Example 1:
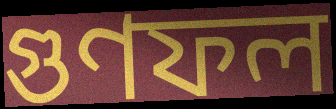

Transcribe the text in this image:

গুণফল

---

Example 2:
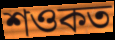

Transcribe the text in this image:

শওকত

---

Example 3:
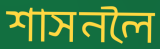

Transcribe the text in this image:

শাসনলৈ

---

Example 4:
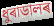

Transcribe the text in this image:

ধুৰাডালৰ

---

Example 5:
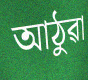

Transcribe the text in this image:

আঠুৱা